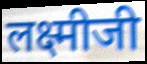
लक्ष्मीजी